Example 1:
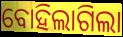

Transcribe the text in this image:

ବୋହିଲାଗିଲା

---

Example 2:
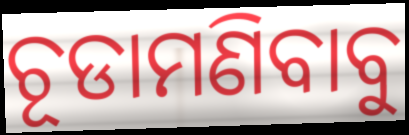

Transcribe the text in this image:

ଚୂଡାମଣିବାବୁ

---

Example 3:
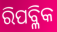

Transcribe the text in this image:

ରିପବ୍ଳିକ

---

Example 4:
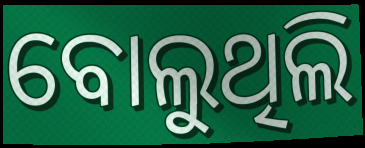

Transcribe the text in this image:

ବୋଲୁଥିଲି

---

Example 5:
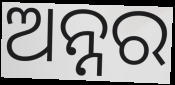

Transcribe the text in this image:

ଅନ୍ନର